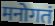
मनोगतं